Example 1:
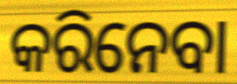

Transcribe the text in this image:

କରିନେବା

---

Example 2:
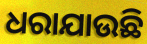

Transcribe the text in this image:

ଧରାଯାଉଛି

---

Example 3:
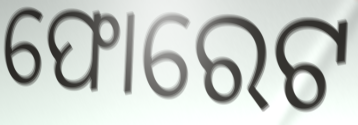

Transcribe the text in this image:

ଫୋରେଟ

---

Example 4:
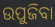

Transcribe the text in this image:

ଉପୁଜିବା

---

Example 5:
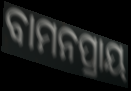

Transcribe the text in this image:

ବାମନପ୍ରାୟ